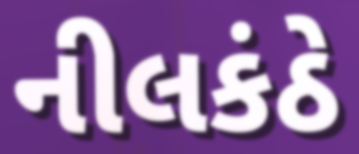
નીલકંઠે